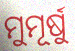
ମୁମୂର୍ଷୁ